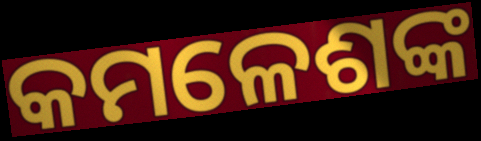
କମଳେଶଙ୍କ